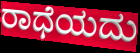
ರಾಧೆಯದು